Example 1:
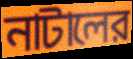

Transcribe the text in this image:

নাটালের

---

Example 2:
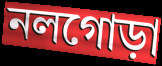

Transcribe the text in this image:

নলগোড়া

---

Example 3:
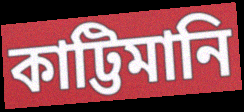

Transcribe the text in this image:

কাট্টিমানি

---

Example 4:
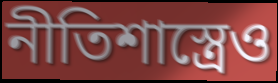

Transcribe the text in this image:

নীতিশাস্ত্রেও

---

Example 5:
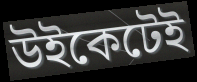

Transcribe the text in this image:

উইকেটেই